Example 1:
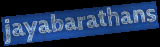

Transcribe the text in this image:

jayabarathans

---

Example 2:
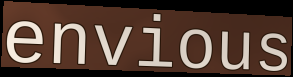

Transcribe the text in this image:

envious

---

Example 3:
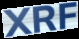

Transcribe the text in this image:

XRF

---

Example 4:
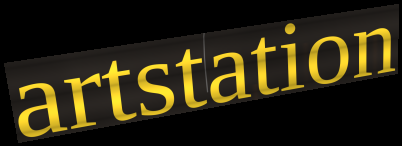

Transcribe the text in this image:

artstation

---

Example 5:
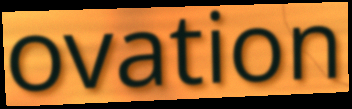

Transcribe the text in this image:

ovation